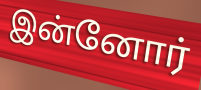
இன்னோர்